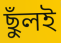
ছুঁলই